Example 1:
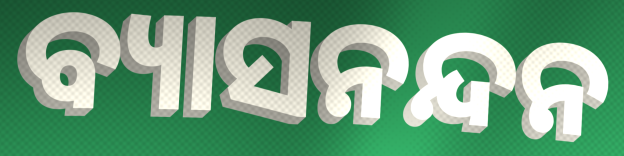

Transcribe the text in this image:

ବ୍ୟାସନନ୍ଦନ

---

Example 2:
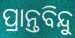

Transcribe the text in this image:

ପ୍ରାନ୍ତବିନ୍ଦୁ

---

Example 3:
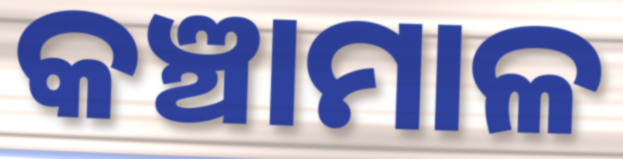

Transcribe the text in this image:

କଞ୍ଚାମାଳ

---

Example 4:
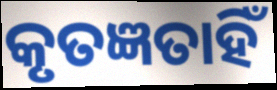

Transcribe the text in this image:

କୃତଜ୍ଞତାହିଁ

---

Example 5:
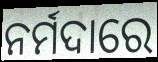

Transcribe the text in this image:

ନର୍ମଦାରେ